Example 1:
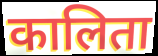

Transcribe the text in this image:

कालिता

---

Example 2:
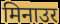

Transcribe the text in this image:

मिनाउर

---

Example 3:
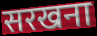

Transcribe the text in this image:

सरखना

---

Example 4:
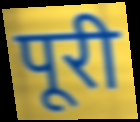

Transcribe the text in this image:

पूरी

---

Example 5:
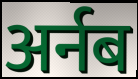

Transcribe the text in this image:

अर्नब